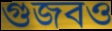
গুজবও